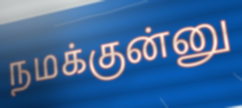
நமக்குன்னு